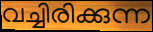
വച്ചിരിക്കുന്ന